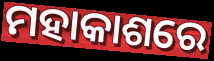
ମହାକାଶରେ